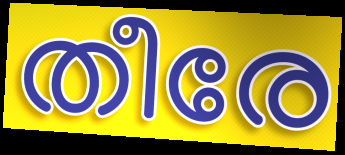
തീരേ